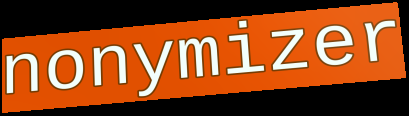
nonymizer